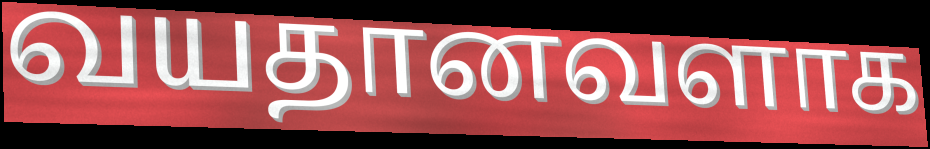
வயதானவளாக